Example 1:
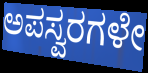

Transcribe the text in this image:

ಅಪಸ್ವರಗಳೇ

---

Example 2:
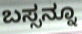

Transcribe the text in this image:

ಬಸ್ಸನ್ನೂ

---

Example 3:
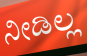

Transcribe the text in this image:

ನೀಡಿಲ್ಲ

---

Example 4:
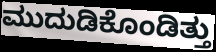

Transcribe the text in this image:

ಮುದುಡಿಕೊಂಡಿತ್ತು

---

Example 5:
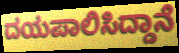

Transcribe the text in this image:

ದಯಪಾಲಿಸಿದ್ದಾನೆ